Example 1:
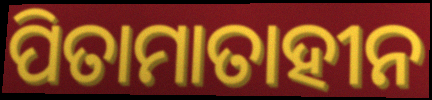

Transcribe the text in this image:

ପିତାମାତାହୀନ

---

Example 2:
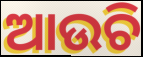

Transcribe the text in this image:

ଆଉଚି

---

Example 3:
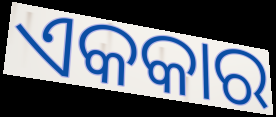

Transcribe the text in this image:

ଏକକାର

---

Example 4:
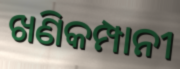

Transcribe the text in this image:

ଖଣିକମ୍ପାନୀ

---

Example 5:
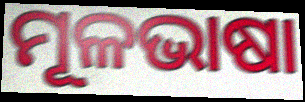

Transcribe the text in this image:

ମୂଳଭାଷା